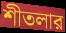
শীতলার